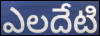
ఎలదేటి